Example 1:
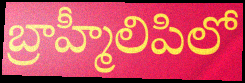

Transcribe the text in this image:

బ్రాహ్మీలిపిలో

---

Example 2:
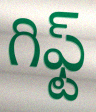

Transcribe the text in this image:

గిఫ్ట్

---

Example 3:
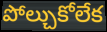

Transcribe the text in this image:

పోల్చుకోలేక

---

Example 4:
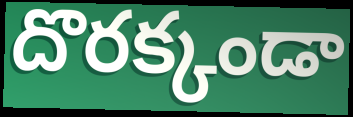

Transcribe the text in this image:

దొరక్కండా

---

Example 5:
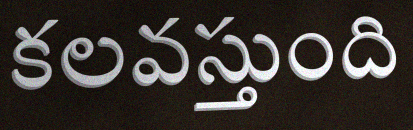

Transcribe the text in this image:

కలవస్తుంది